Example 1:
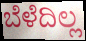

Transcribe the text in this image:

ಬೆಳೆದಿಲ್ಲ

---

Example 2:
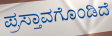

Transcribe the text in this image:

ಪ್ರಸ್ತಾವಗೊಂಡಿದೆ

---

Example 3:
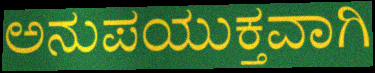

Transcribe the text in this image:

ಅನುಪಯುಕ್ತವಾಗಿ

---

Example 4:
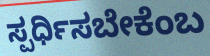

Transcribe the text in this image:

ಸ್ಪರ್ಧಿಸಬೇಕೆಂಬ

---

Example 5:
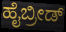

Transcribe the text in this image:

ಹೈಬ್ರೀಡ್